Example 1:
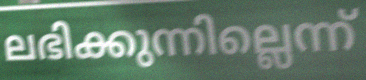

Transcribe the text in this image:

ലഭിക്കുന്നില്ലെന്ന്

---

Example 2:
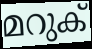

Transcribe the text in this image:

മറുക്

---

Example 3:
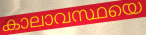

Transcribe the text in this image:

കാലാവസ്ഥയെ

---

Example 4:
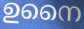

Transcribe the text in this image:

ഉനൈ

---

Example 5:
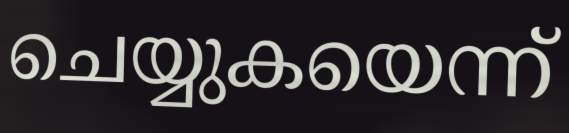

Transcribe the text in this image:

ചെയ്യുകയെന്ന്